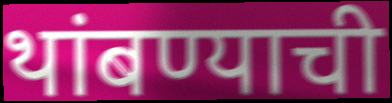
थांबण्याची